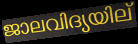
ജാലവിദ്യയില്